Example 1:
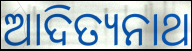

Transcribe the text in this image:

ଆଦିତ୍ୟନାଥ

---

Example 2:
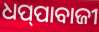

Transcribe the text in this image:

ଧପ୍‌ପାବାଜୀ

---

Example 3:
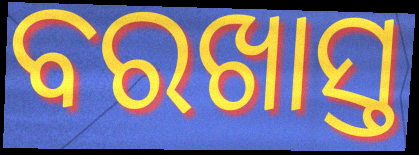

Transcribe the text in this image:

ବରଖାସ୍ତ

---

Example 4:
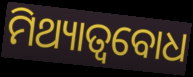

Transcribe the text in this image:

ମିଥ୍ୟାତ୍ୱବୋଧ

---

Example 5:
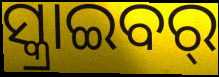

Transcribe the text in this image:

ସ୍କ୍ରାଇବର୍